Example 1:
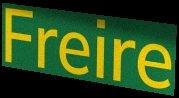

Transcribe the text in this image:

Freire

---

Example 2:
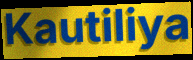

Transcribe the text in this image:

Kautiliya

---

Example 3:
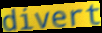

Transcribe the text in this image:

divert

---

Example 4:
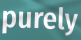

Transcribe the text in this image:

purely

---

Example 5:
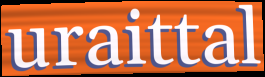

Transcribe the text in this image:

uraittal